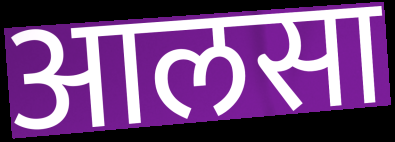
आलसा